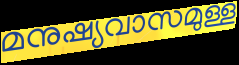
മനുഷ്യവാസമുള്ള